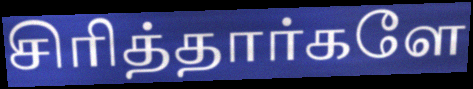
சிரித்தார்களே